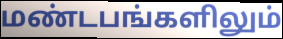
மண்டபங்களிலும்